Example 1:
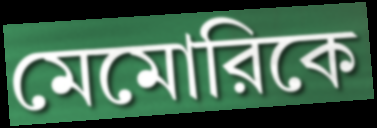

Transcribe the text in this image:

মেমোরিকে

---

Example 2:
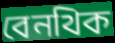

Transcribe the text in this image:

বেনথিক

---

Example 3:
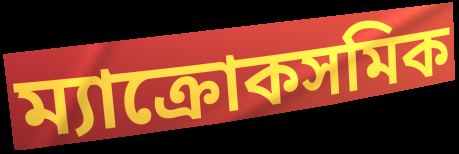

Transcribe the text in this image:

ম্যাক্রোকসমিক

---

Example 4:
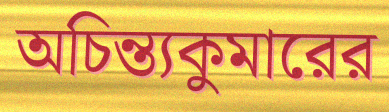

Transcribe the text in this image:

অচিন্ত্যকুমারের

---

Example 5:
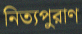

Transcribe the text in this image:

নিত্যপুরাণ